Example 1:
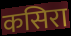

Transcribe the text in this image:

कसिरा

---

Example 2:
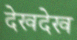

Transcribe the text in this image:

देखदेख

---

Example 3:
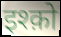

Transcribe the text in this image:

इश्क़ो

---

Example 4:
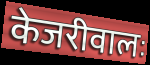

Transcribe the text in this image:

केजरीवालः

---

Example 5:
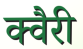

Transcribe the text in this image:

क्वैरी